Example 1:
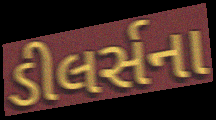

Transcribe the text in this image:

ડીલર્સના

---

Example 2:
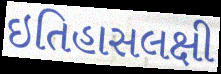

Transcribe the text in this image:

ઇતિહાસલક્ષી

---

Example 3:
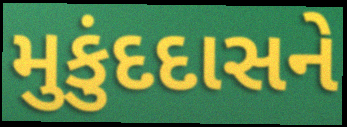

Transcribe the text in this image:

મુકુંદદાસને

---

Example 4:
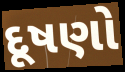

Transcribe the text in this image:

દૂષણો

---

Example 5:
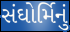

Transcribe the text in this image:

સંઘોર્મિનું